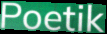
Poetik